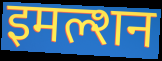
इमल्शन